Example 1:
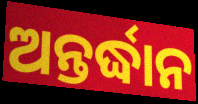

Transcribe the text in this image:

ଅନ୍ତର୍ଦ୍ଧାନ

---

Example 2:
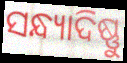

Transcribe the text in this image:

ସନ୍ଧ୍ୟାଦିଷ୍ଣୁ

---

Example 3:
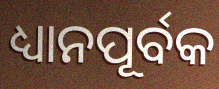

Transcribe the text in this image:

ଧ୍ୟାନପୂର୍ବକ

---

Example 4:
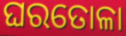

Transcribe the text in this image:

ଘରତୋଳା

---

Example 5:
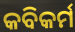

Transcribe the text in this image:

କବିକର୍ମ